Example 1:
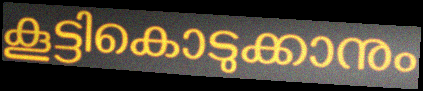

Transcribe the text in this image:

കൂട്ടികൊടുക്കാനും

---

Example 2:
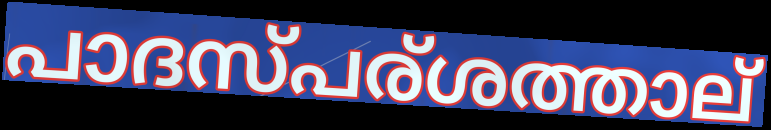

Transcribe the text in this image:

പാദസ്പര്ശത്താല്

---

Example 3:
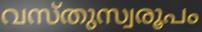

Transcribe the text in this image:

വസ്തുസ്വരൂപം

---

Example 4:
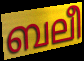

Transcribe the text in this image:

ബലീ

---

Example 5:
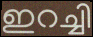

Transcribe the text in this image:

ഇറച്ചി